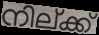
നില്ക്ക്